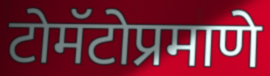
टोमॅटोप्रमाणे